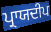
ਪ੍ਰਾਯਦੀਪ